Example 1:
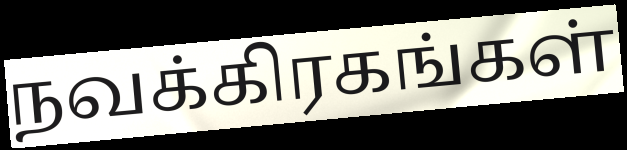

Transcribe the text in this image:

நவக்கிரகங்கள்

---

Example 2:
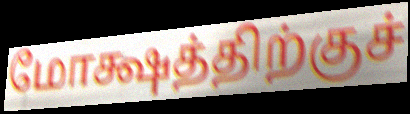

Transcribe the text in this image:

மோக்ஷத்திற்குச்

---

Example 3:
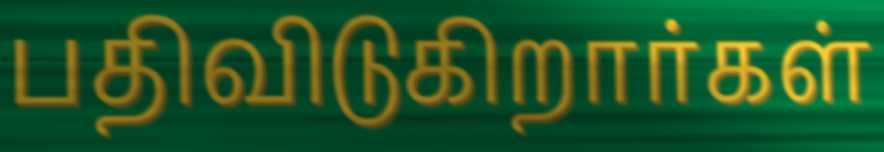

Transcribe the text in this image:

பதிவிடுகிறார்கள்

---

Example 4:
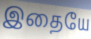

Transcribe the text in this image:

இதையே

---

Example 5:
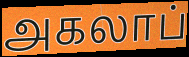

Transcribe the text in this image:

அகலாப்